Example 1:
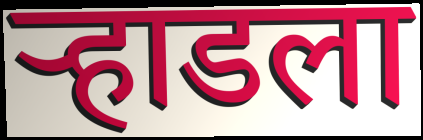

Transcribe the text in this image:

ऱ्हाडला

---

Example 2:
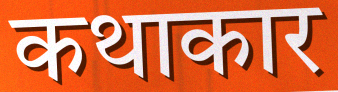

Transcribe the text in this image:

कथाकार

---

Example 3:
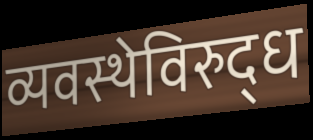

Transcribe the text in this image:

व्यवस्थेविरुद्ध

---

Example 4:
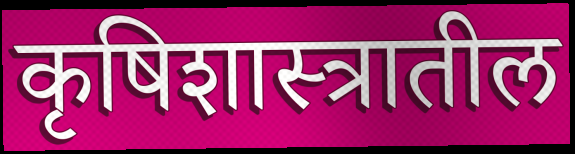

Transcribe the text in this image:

कृषिशास्त्रातील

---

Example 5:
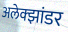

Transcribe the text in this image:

अलेक्झांडर